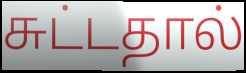
சுட்டதால்